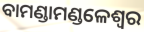
ବାମଣ୍ଡାମଣ୍ଡଳେଶ୍ୱର